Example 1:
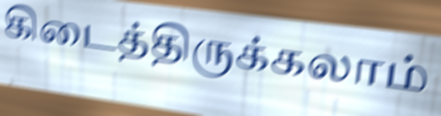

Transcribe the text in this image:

கிடைத்திருக்கலாம்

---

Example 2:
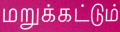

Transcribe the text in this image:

மறுக்கட்டும்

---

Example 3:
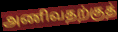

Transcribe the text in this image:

அணிவதற்குத்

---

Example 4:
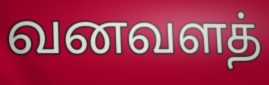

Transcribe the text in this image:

வனவளத்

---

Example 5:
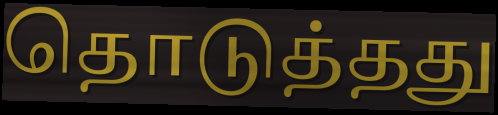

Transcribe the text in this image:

தொடுத்தது